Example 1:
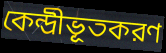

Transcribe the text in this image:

কেন্দ্রীভূতকরণ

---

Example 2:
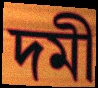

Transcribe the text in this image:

দমী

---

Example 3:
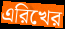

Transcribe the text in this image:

এরিখের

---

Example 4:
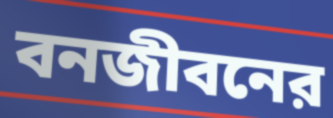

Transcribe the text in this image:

বনজীবনের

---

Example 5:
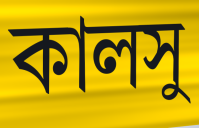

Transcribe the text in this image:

কালসু